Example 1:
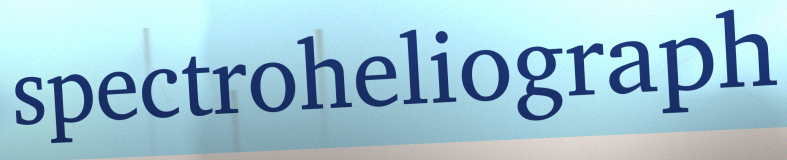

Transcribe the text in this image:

spectroheliograph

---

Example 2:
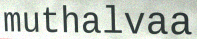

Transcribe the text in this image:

muthalvaa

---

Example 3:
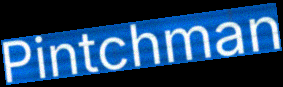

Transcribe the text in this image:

Pintchman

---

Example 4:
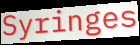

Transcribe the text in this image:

Syringes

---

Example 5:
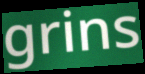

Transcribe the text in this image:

grins